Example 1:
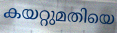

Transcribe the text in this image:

കയറ്റുമതിയെ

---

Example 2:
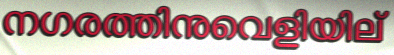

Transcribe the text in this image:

നഗരത്തിനുവെളിയില്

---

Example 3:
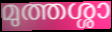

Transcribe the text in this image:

മുത്തശ്ശാ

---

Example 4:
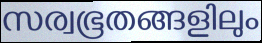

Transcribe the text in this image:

സര്വഭൂതങ്ങളിലും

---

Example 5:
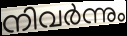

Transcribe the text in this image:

നിവർന്നും